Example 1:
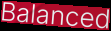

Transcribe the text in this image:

Balanced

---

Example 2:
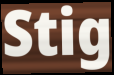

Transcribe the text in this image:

Stig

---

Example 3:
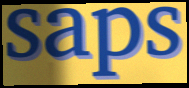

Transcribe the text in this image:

saps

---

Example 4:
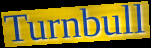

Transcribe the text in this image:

Turnbull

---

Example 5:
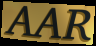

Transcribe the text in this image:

AAR